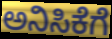
ಅನಿಸಿಕೆಗೆ